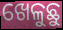
ଖେଳୁଛୁ